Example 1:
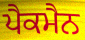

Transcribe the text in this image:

ਪੈਕਮੈਨ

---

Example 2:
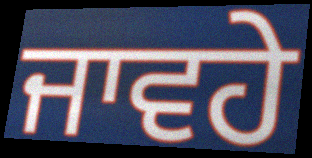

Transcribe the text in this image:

ਜਾਵਹੇ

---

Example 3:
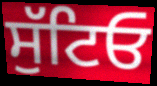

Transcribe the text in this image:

ਸੁੱਟਿਓ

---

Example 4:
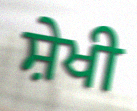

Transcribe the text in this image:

ਸ਼ੇਖੀ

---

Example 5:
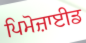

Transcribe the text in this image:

ਪਿਮੋਜ਼ਾਈਡ